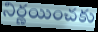
నిర్ణయించకు